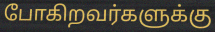
போகிறவர்களுக்கு